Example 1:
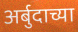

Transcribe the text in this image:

अर्बुदाच्या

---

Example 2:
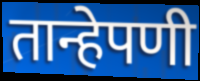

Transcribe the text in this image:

तान्हेपणी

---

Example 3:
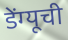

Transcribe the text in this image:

डेंग्यूची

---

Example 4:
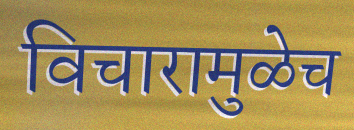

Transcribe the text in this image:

विचारामुळेच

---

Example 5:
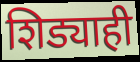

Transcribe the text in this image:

शिड्याही